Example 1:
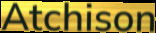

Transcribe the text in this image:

Atchison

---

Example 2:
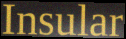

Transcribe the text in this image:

Insular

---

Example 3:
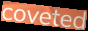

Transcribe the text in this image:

coveted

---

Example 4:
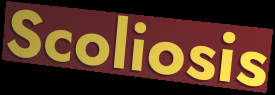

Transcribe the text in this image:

Scoliosis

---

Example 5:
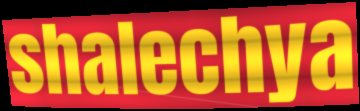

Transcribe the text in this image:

shalechya